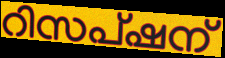
റിസപ്ഷന്